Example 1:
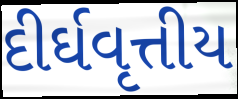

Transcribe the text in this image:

દીર્ઘવૃત્તીય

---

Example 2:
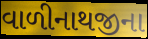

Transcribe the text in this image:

વાળીનાથજીના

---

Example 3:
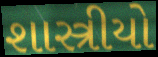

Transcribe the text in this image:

શાસ્ત્રીયો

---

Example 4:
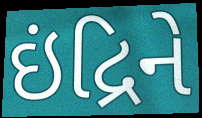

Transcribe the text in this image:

ઇંદ્રિને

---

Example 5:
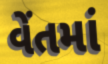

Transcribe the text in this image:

વેંતમાં